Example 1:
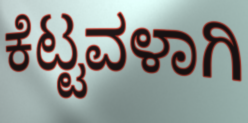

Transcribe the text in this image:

ಕೆಟ್ಟವಳಾಗಿ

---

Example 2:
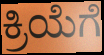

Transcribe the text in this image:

ಕ್ರಿಯೆಗೆ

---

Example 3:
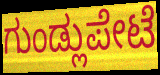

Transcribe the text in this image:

ಗುಂಡ್ಲುಪೇಟೆ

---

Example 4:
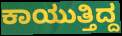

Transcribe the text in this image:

ಕಾಯುತ್ತಿದ್ದ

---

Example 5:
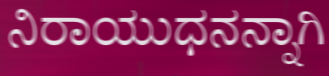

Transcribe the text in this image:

ನಿರಾಯುಧನನ್ನಾಗಿ